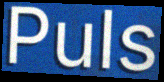
Puls